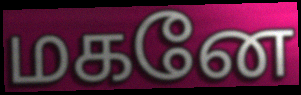
மகனே